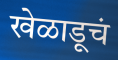
खेळाडूचं